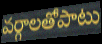
వర్గాలతోపాటు